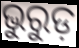
ଭୁରୁଡ଼